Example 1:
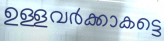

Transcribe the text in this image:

ഉള്ളവർക്കാകട്ടെ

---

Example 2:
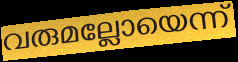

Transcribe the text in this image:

വരുമല്ലോയെന്ന്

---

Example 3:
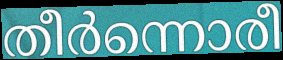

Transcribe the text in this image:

തീർന്നൊരീ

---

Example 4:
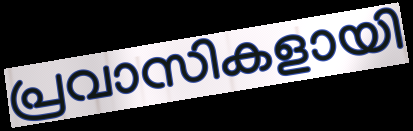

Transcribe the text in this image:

പ്രവാസികളായി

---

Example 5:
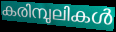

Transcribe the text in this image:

കരിമ്പുലികൾ